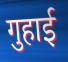
गुहाई